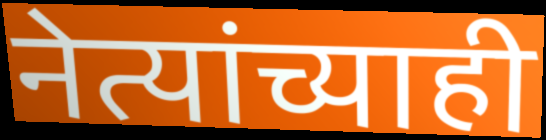
नेत्यांच्याही